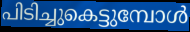
പിടിച്ചുകെട്ടുമ്പോൾ